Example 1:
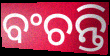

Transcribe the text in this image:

ବଂଚନ୍ତି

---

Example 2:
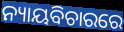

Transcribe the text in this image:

ନ୍ୟାୟବିଚାରରେ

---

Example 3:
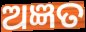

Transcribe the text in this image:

ଅଜ୍ଞତ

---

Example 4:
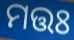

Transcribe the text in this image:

ମତ୍ତଃ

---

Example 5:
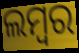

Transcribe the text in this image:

ଲମ୍ୱର